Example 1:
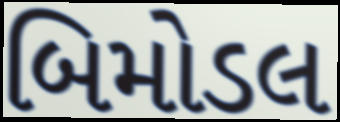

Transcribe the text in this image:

બિમોડલ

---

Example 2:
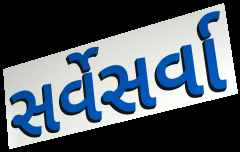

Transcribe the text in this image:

સર્વેસર્વા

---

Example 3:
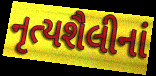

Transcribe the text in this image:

નૃત્યશૈલીનાં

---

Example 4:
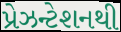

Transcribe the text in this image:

પ્રેઝન્ટેશનથી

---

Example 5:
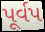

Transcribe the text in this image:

પૂર્વપ